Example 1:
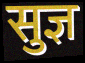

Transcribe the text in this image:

सुज्ञ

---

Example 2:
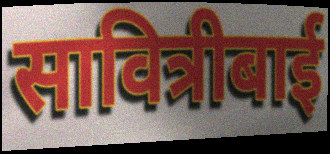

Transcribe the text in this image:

सावित्रीबाई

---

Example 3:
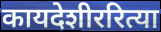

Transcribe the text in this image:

कायदेशीररित्या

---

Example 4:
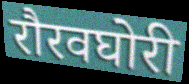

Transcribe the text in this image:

रौरवघोरी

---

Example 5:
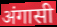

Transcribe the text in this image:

अंगासी